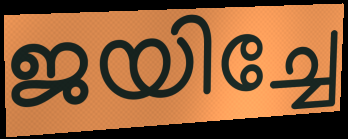
ജയിച്ചേ